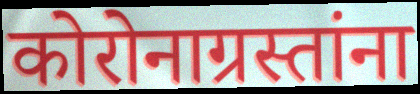
कोरोनाग्रस्तांना